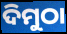
ଦିମୁଠା